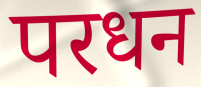
परधन